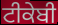
ਟੀਕੇਬੀ